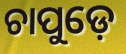
ଚାପୁଡ଼େ